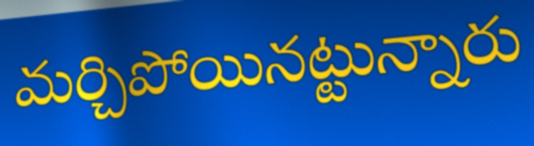
మర్చిపోయినట్టున్నారు